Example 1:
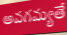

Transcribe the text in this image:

అవగమ్యతే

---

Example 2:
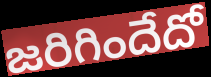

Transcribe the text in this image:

జరిగిందేదో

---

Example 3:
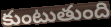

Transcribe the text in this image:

కుంటుతుంది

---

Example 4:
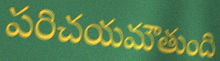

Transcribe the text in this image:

పరిచయమౌతుంది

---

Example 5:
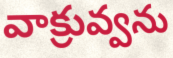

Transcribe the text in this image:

వాక్రువ్వను